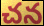
చన